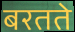
बरतते